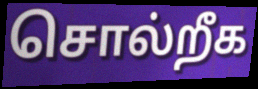
சொல்றீக